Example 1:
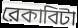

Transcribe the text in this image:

রেকাবিটা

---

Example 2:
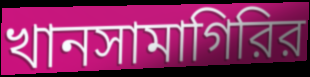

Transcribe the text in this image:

খানসামাগিরির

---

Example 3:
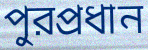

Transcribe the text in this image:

পুরপ্রধান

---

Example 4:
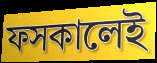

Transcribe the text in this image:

ফসকালেই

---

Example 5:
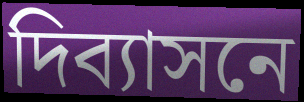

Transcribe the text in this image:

দিব্যাসনে